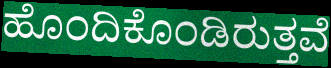
ಹೊಂದಿಕೊಂಡಿರುತ್ತವೆ